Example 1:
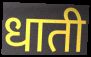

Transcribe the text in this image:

धाती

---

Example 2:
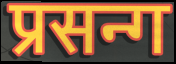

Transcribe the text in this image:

प्रसन्ग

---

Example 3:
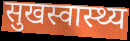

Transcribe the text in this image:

सुखस्वास्थ्य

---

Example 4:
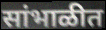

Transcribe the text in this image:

सांभाळीत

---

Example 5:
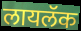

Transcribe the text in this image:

लायलॅक